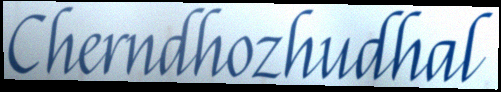
Cherndhozhudhal